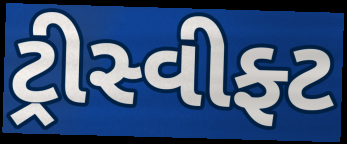
ટ્રીસ્વીફ્ટ